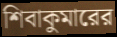
শিবাকুমারের